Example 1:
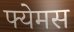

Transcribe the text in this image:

फ्येमस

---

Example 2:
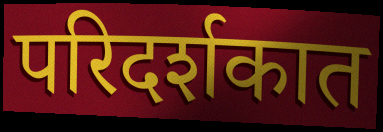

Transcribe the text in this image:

परिदर्शकात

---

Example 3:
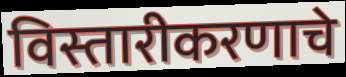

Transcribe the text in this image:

विस्तारीकरणाचे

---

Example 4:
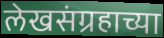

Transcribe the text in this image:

लेखसंग्रहाच्या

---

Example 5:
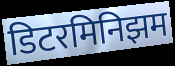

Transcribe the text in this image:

डिटरमिनिझम